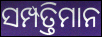
ସମ୍ପତ୍ତିମାନ